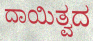
ದಾಯಿತ್ವದ